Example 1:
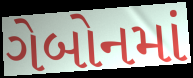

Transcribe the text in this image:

ગેબોનમાં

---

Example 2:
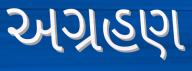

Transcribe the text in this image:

અગ્રહણ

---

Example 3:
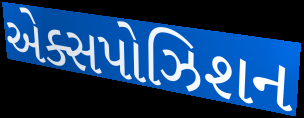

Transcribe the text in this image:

એક્સપોઝિશન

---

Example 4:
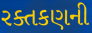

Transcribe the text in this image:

રક્તકણની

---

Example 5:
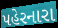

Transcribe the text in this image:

પહેરનારા